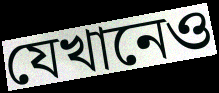
যেখানেও